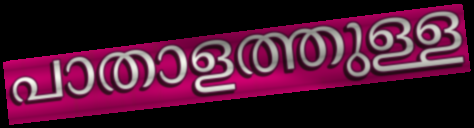
പാതാളത്തുള്ള